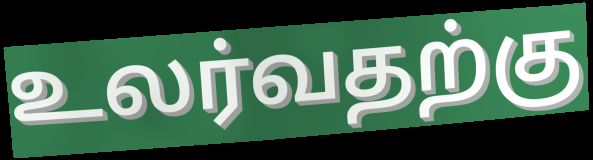
உலர்வதற்கு